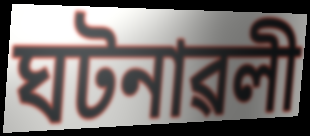
ঘটনাৱলী